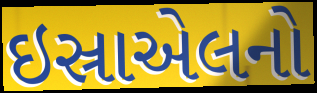
ઇસ્રાએલનો